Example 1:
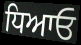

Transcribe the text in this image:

ਧਿਆਓ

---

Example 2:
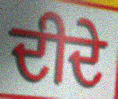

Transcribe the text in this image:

ਦੀਦੇ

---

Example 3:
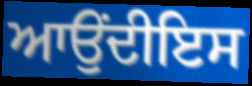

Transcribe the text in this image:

ਆਉਂਦੀਇਸ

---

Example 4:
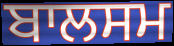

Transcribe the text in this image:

ਬਾਲਸਮ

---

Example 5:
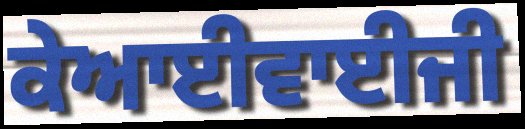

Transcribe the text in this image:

ਕੇਆਈਵਾਈਜੀ